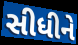
સીધીને